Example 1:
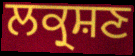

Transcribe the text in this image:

ਲਕ੍ਰਸ਼ਣ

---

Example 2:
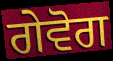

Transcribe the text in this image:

ਗੇਵੋਗ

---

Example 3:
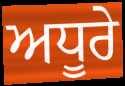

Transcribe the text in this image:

ਅਧੂਰੇ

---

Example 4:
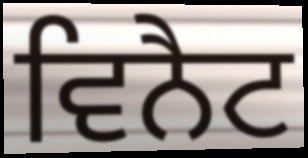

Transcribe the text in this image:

ਵਿਨੈਟ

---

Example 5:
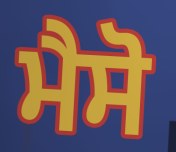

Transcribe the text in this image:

ਮੈਸੋ